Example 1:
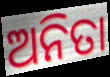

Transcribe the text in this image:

ଅନିତା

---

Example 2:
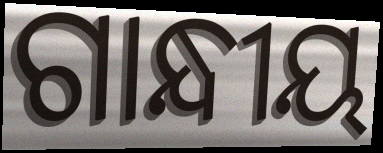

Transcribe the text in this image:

ଗାନ୍ଧୀୟ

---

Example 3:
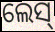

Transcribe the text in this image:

ଲେସ୍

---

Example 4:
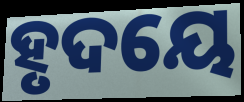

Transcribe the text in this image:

ହୃଦୟେ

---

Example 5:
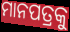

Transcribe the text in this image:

ମାନପତ୍ରକୁ